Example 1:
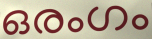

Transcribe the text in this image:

ഒരംഗം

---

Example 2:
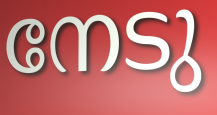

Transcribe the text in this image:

നേടു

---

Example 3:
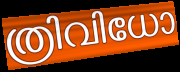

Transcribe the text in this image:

ത്രിവിധോ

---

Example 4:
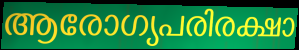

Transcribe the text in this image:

ആരോഗ്യപരിരക്ഷാ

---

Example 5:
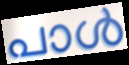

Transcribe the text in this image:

പാൾ